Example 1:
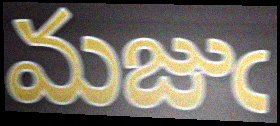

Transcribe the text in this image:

మజుఁ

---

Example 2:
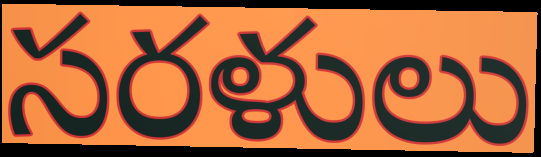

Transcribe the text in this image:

సరళులు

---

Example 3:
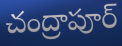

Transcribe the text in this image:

చంద్రాపూర్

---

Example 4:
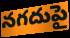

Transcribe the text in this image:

నగదుపై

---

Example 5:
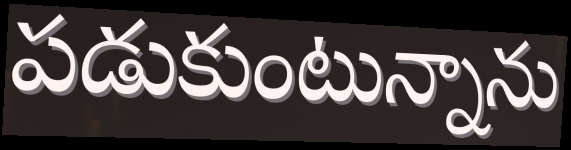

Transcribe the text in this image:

పడుకుంటున్నాను